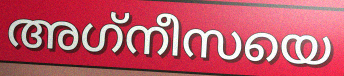
അഗ്‌നീസയെ